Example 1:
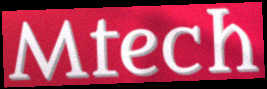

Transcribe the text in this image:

Mtech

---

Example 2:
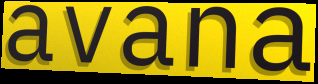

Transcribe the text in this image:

avana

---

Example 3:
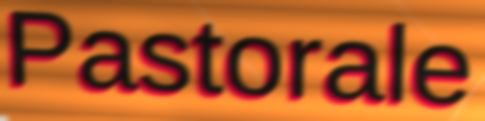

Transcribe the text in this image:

Pastorale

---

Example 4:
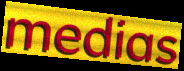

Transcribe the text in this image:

medias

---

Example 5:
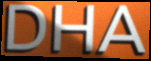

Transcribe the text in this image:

DHA